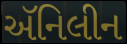
ઍનિલીન